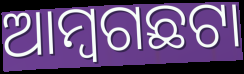
ଆମ୍ବଗଛଟା